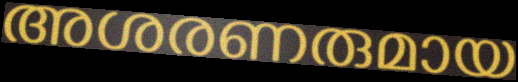
അശരണരുമായ